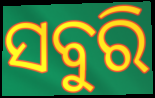
ସବୁରି